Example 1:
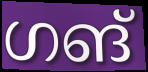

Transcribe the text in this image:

ഗങ്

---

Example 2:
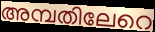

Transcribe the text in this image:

അമ്പതിലേറെ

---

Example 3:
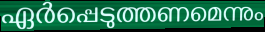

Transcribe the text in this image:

ഏർപ്പെടുത്തണമെന്നും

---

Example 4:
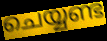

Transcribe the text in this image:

ചെയ്യണ്ട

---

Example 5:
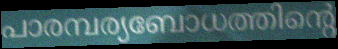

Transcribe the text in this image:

പാരമ്പര്യബോധത്തിന്റെ